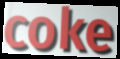
coke